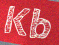
Kb